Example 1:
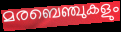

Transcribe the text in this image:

മരബെഞ്ചുകളും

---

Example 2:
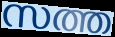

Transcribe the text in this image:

സത്ത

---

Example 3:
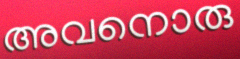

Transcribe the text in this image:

അവനൊരു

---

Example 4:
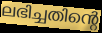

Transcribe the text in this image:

ലഭിച്ചതിന്റെ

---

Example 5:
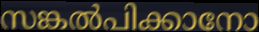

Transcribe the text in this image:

സങ്കൽപിക്കാനോ